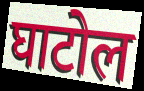
घाटोल